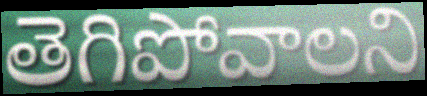
తెగిపోవాలని